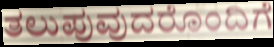
ತಲುಪುವುದರೊಂದಿಗೆ